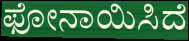
ಫೋನಾಯಿಸಿದೆ